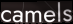
camels